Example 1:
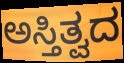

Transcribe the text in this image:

ಅಸ್ತಿತ್ವದ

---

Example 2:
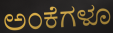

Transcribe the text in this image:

ಅಂಕೆಗಳೂ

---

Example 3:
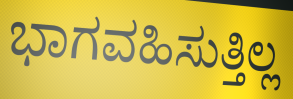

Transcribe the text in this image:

ಭಾಗವಹಿಸುತ್ತಿಲ್ಲ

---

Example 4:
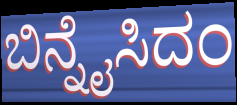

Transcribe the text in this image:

ಬಿನ್ನೈಸಿದಂ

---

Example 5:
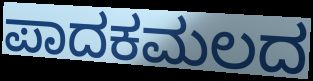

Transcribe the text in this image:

ಪಾದಕಮಲದ